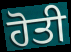
ਹੋਤੀ